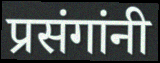
प्रसंगांनी